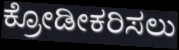
ಕ್ರೋಡೀಕರಿಸಲು